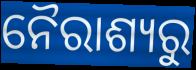
ନୈରାଶ୍ୟରୁ